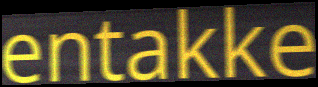
entakke